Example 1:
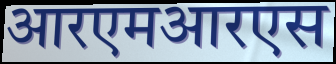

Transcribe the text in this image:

आरएमआरएस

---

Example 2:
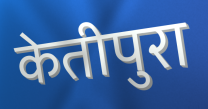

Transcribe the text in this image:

केतीपुरा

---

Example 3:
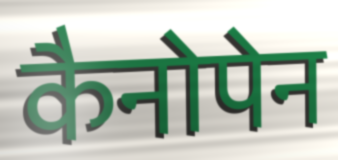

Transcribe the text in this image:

कैनोपेन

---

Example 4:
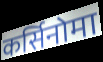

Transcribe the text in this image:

कर्सिनोमा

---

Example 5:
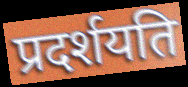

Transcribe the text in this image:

प्रदर्शयति